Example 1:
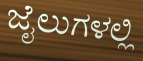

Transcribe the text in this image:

ಜೈಲುಗಳಲ್ಲಿ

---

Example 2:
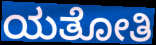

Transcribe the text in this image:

ಯತೋತಿ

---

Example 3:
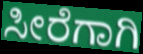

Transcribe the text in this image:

ಸೀರೆಗಾಗಿ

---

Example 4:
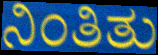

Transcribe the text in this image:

ನಿಂತಿತು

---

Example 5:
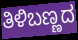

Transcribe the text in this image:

ತಿಳಿಬಣ್ಣದ